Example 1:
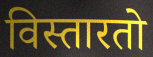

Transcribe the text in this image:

विस्तारतो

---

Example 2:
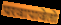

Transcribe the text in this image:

परवापावेतो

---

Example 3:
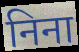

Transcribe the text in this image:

निना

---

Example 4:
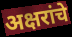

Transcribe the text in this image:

अक्षरांचे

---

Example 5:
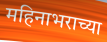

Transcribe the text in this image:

महिनाभराच्या